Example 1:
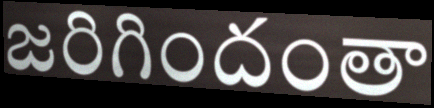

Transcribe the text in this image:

జరిగిందంతా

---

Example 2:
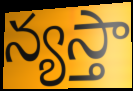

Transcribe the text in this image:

న్యస్తా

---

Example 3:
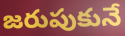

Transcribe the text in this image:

జరుపుకునే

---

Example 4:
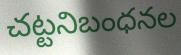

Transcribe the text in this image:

చట్టనిబంధనల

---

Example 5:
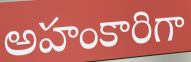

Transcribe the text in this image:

అహంకారిగా